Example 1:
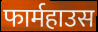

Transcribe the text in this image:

फार्महाउस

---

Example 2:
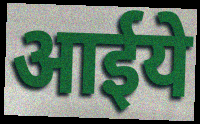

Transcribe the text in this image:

आईये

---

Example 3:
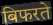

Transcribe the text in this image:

बिफरते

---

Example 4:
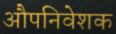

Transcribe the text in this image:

औपनिवेशक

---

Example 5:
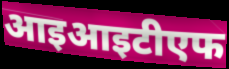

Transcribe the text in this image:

आइआइटीएफ